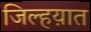
जिल्हय़ात